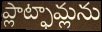
ప్లాట్ఫామ్లను